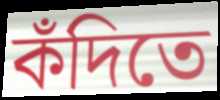
কঁদিতে